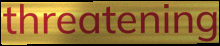
threatening